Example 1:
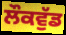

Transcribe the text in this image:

ਲੌਕਵੁੱਡ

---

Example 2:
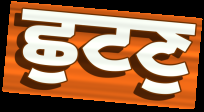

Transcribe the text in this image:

ਛੁਟਣੁ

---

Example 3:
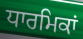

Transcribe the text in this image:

ਧਾਰਮਿਕਾਂ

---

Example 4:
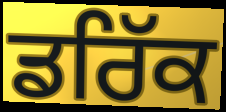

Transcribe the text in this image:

ਡਰਿੱਕ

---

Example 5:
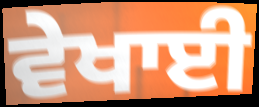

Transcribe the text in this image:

ਵੇਖਾਈ